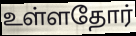
உள்ளதோர்